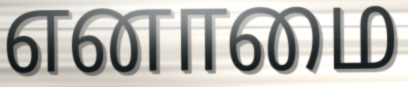
எனாமை